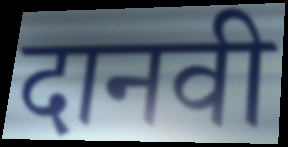
दानवी